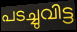
പടച്ചുവിട്ട